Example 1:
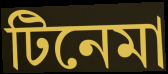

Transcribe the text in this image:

টিনেমা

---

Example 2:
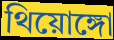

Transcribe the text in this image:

থিয়োঙ্গো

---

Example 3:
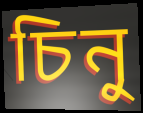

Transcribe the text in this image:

চিনু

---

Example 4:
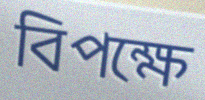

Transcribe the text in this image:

বিপক্ষে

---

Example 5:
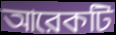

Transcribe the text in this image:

আরেকটি